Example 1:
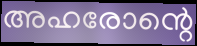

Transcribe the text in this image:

അഹരോന്റെ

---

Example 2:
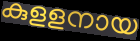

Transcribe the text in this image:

കുളളനായ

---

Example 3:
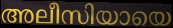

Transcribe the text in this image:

അലീസിയായെ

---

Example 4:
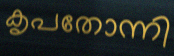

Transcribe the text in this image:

കൃപതോന്നി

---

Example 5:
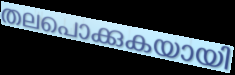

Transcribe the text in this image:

തലപൊക്കുകയായി